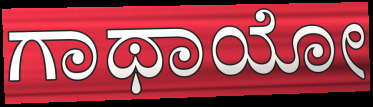
ಗಾಥಾಯೋ